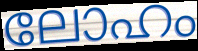
ലോഹം